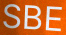
SBE